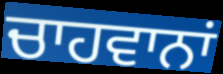
ਚਾਹਵਾਨਾਂ